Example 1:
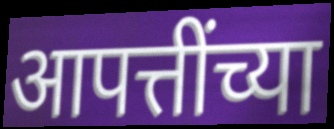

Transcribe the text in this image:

आपत्तींच्या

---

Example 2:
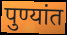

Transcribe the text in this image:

पुण्यांत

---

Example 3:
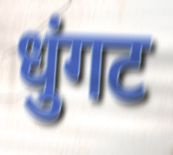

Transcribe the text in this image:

धुंगट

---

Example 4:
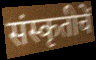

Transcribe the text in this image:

संस्कृतीचें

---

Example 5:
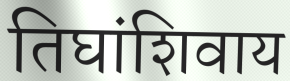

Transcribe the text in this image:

तिघांशिवाय